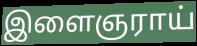
இளைஞராய்